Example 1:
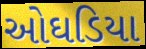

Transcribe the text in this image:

ઓઘડિયા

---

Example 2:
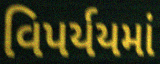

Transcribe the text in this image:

વિપર્યયમાં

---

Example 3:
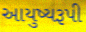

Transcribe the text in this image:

આયુષ્યરૂપી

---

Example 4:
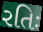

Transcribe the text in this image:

રતિઃ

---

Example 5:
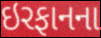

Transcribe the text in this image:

ઇરફાનના